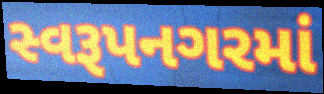
સ્વરૂપનગરમાં